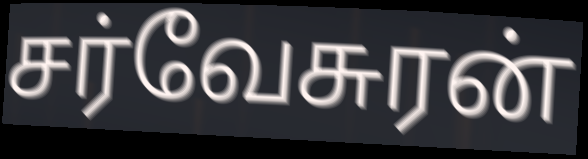
சர்வேசுரன்